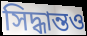
সিদ্ধান্তও